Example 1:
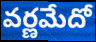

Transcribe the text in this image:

వర్ణమేదో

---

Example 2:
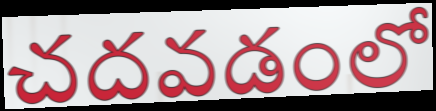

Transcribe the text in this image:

చదవడంలో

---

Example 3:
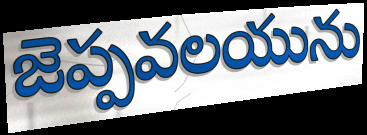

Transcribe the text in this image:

జెప్పవలయును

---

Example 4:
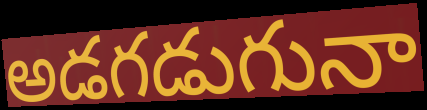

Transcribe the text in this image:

అడగడుగునా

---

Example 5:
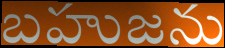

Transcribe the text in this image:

బహుజను